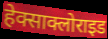
हेक्साक्लोराइड